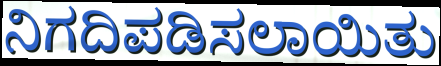
ನಿಗದಿಪಡಿಸಲಾಯಿತು